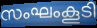
സംഘംകൂടി